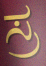
ಸ್ರ